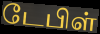
டேபிள்